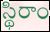
స్థిరాం